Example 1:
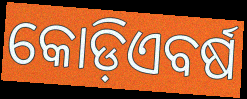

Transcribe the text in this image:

କୋଡ଼ିଏବର୍ଷ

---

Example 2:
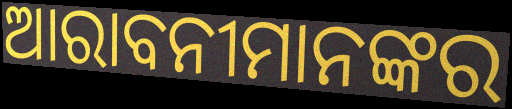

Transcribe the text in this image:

ଆରାବନୀମାନଙ୍କର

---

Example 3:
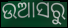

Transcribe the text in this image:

ଉଆସରୁ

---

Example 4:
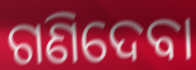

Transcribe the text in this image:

ଗଣିଦେବା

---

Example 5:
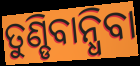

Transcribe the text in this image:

ତୁଣ୍ଡିବାନ୍ଧିବା